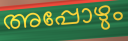
അപ്പോഴും